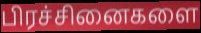
பிரச்சினைகளை